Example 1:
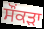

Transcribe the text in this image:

ਸੌਂਕੜਾ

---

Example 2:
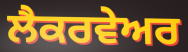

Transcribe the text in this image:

ਲੈਕਰਵੇਅਰ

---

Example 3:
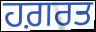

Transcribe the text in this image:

ਹਗ਼ਰਤ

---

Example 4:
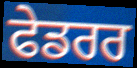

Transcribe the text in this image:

ਫੇਡਰਰ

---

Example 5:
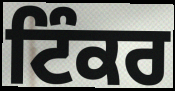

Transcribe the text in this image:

ਟਿੰਕਰ